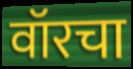
वॉरचा